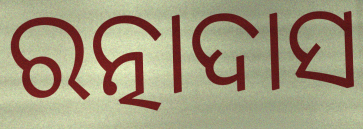
ରତ୍ନାଦାସ